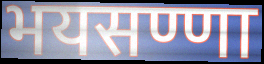
भयसण्णा